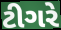
ટીગરે